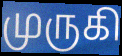
முருகி